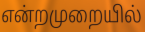
என்றமுறையில்